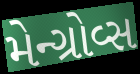
મેન્ગ્રોવ્સ